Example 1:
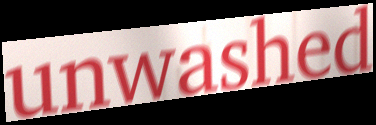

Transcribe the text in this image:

unwashed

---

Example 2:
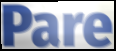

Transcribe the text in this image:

Pare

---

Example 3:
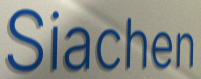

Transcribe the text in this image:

Siachen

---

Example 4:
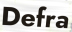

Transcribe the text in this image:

Defra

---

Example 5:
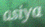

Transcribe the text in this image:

asiya